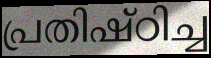
പ്രതിഷ്ഠിച്ച